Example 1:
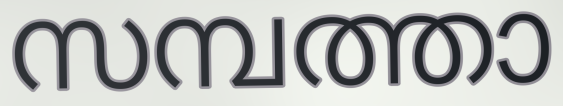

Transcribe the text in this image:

സമ്പത്താ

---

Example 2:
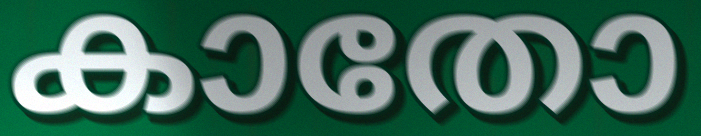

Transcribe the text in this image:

കാതോ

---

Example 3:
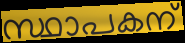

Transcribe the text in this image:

സ്ഥാപകന്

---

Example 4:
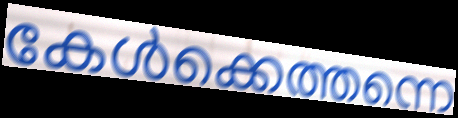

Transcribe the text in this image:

കേൾക്കെത്തന്നെ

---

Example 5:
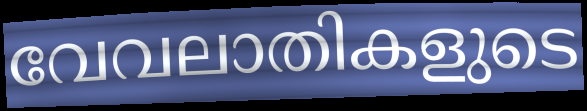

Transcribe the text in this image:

വേവലാതികളുടെ